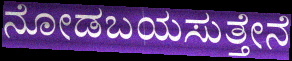
ನೋಡಬಯಸುತ್ತೇನೆ